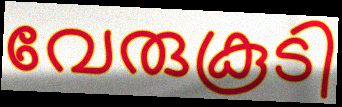
വേരുകൂടി